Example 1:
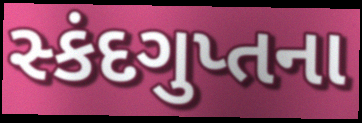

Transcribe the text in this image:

સ્કંદગુપ્તના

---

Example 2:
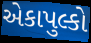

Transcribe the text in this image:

એકાપુલ્કો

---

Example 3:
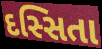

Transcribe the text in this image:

દસ્સિતા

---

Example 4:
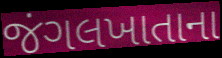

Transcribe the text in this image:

જંગલખાતાના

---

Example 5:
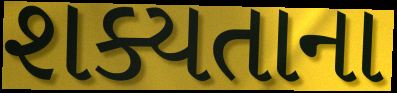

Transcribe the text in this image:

શક્યતાના